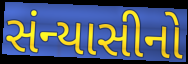
સંન્યાસીનો